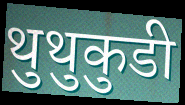
थुथुकुडी